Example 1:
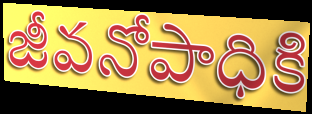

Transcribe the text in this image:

జీవనోపాధికి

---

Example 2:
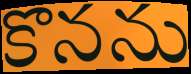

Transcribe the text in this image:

కొనను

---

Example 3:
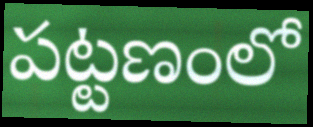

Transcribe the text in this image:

పట్టణంలో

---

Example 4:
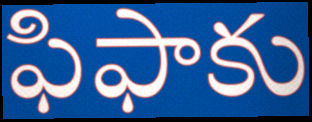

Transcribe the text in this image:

ఫిఫాకు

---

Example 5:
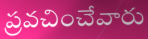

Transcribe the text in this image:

ప్రవచించేవారు